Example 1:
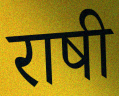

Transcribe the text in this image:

राषी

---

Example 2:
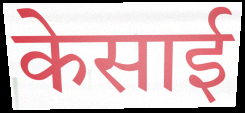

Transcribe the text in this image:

केसाई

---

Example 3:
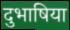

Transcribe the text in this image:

दुभाषिया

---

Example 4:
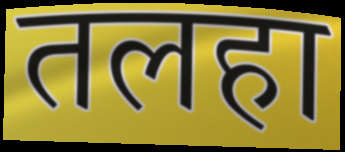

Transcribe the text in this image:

तलहा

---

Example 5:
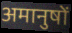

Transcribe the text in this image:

अमानुषों